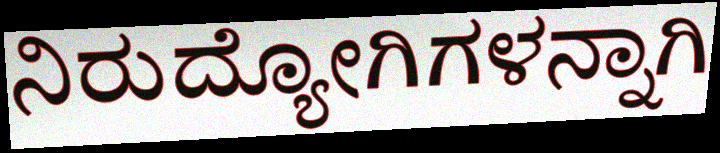
ನಿರುದ್ಯೋಗಿಗಳನ್ನಾಗಿ